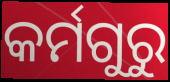
କର୍ମଗୁରୁ